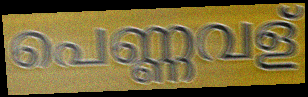
പെണ്ണവള്